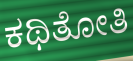
ಕಥಿತೋತಿ